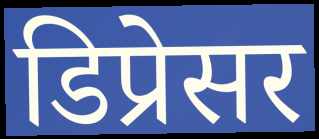
डिप्रेसर